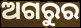
ଅଗରୁର